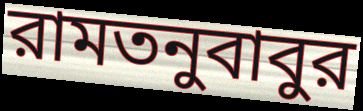
রামতনুবাবুর